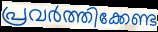
പ്രവർത്തിക്കേണ്ട